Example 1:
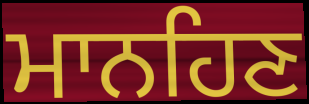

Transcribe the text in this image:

ਮਾਨਹਿਣ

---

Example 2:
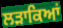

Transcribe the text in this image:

ਲੜਾਕਿਆਂ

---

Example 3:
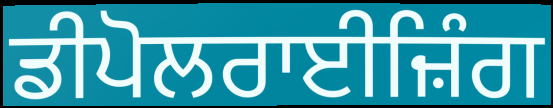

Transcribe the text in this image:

ਡੀਪੋਲਰਾਈਜ਼ਿੰਗ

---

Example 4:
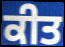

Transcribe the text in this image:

ਕੀਤ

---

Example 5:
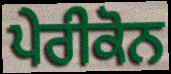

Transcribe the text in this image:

ਪੇਰੀਕੋਨ